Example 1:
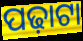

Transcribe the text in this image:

ପଢ଼ାଟା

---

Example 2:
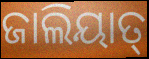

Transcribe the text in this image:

ଜାଲିୟାତ୍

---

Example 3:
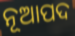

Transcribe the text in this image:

ନୂଆପଦ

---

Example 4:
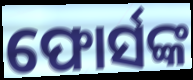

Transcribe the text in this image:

ଫୋର୍ସଙ୍କ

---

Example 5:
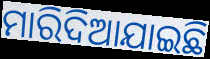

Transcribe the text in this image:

ମାରିଦିଆଯାଇଛି